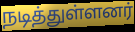
நடித்துள்ளனர்